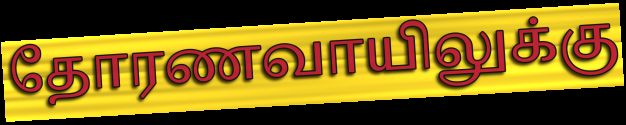
தோரணவாயிலுக்கு